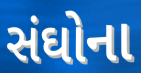
સંઘોના